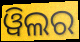
ୱିଲର